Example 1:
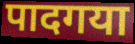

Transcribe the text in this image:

पादगया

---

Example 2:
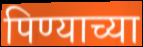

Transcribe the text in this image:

पिण्याच्या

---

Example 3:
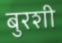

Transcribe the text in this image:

बुरशी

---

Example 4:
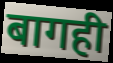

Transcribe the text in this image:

बागही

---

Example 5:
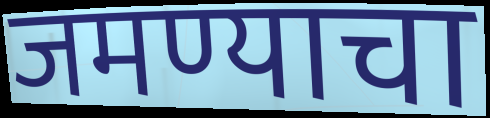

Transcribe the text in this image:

जमण्याचा